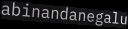
abinandanegalu